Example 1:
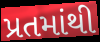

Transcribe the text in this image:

પ્રતમાંથી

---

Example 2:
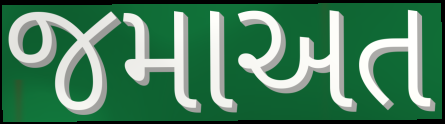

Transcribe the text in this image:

જમાઅત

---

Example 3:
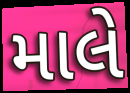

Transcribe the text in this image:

માલે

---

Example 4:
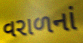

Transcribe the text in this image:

વરાળનાં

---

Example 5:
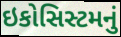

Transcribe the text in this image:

ઇકોસિસ્ટમનું